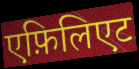
एफ़िलिएट